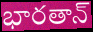
భారతాన్